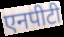
एनपीटी